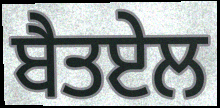
ਬੈਤਏਲ